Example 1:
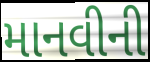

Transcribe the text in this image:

માનવીની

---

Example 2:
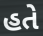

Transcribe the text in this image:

હતે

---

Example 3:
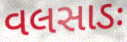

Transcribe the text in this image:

વલસાડઃ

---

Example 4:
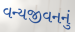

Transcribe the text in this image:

વન્યજીવનનું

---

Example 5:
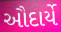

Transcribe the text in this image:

ઔદાર્યે